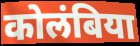
कोलंबिया